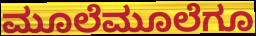
ಮೂಲೆಮೂಲೆಗೂ